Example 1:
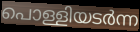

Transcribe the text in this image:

പൊള്ളിയടർന്ന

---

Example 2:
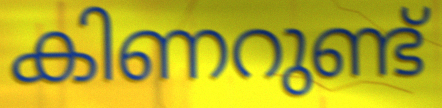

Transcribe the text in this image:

കിണറുണ്ട്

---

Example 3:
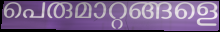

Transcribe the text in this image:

പെരുമാറ്റങ്ങളെ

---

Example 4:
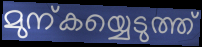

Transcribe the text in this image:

മുന്കയ്യെടുത്ത്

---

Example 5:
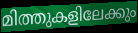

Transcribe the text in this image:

മിത്തുകളിലേക്കും